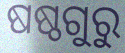
ଷଷ୍ଠଗୁରୁ